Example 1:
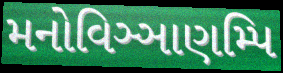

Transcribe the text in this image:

મનોવિઞ્ઞાણમ્પિ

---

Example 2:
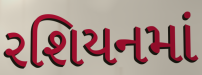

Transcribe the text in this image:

રશિયનમાં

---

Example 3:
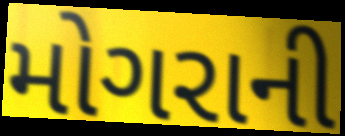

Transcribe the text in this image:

મોગરાની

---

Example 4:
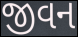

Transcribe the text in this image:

જીવન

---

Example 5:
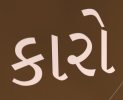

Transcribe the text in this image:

કારો